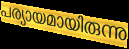
പര്യായമായിരുന്നു